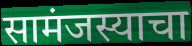
सामंजस्याचा